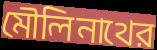
মৌলিনাথের